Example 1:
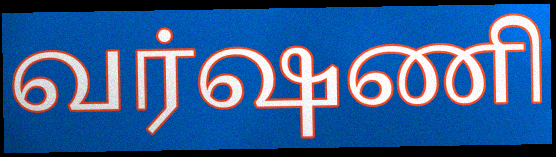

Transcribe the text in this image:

வர்ஷணி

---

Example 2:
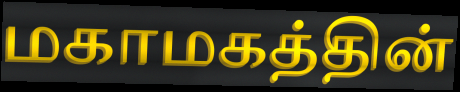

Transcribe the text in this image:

மகாமகத்தின்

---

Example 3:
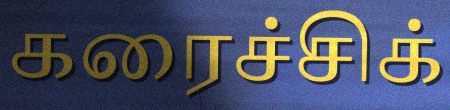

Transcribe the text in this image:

கரைச்சிக்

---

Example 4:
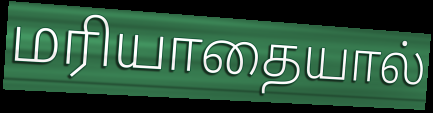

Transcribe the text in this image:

மரியாதையால்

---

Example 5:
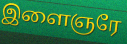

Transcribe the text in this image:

இளைஞரே